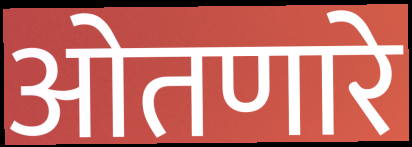
ओतणारे